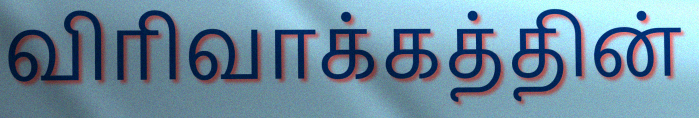
விரிவாக்கத்தின்